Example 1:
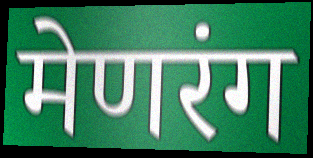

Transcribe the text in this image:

मेणरंग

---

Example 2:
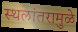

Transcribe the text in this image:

स्थलांतरामुळे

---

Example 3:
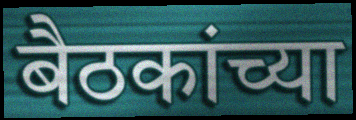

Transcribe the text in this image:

बैठकांच्या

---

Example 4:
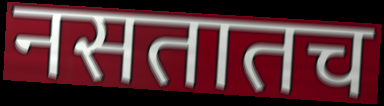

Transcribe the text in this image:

नसतातच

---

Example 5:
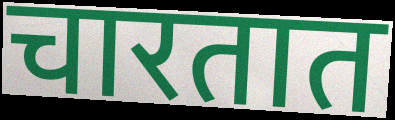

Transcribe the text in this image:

चारतात